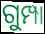
ଗୁମ୍ପା